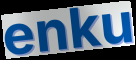
enku